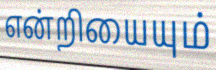
என்றியையும்